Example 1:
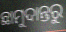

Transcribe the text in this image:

ଛାମୁଦାନ୍ତରୁ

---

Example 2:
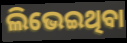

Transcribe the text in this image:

ଲିଭେଇଥିବା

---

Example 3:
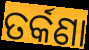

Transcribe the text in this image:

ତର୍କଣା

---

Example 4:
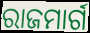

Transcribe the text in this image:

ରାଜମାର୍ଗ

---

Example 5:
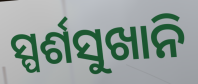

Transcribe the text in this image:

ସ୍ପର୍ଶସୁଖାନି